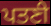
ਪਤਣੀ